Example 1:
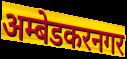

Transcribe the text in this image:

अम्बेडकरनगर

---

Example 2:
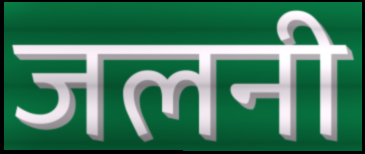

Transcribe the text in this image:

जलनी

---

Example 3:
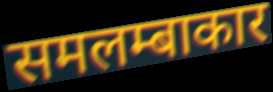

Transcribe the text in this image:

समलम्बाकार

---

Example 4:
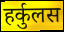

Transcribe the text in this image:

हर्कुलस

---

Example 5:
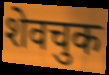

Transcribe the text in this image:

शेवचुक